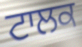
ਟਾਲਕ